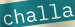
challa